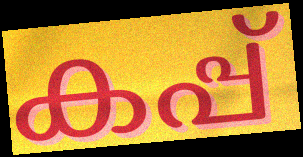
കപ്പ്